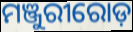
ମଞ୍ଜୁରୀରୋଡ଼